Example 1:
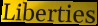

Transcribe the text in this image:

Liberties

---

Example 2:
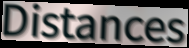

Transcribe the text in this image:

Distances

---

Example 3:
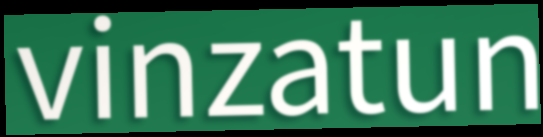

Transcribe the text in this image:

vinzatun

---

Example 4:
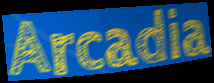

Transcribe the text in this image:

Arcadia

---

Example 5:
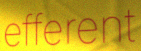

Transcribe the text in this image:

efferent